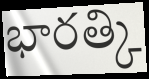
భారత్కి